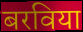
बरविया